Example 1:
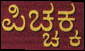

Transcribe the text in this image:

ಪಿಚ್ಚಕ್ಕ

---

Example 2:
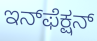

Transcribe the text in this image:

ಇನ್‌ಫೆಕ್ಷನ್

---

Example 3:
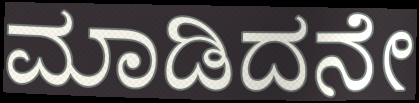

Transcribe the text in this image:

ಮಾಡಿದನೇ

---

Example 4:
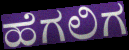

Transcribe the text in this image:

ಹೆಗಲಿಗ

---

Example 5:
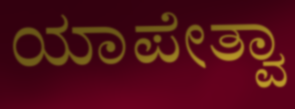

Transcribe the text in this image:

ಯಾಪೇತ್ವಾ